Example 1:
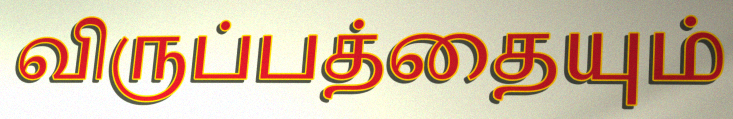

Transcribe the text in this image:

விருப்பத்தையும்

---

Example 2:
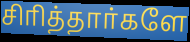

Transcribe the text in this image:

சிரித்தார்களே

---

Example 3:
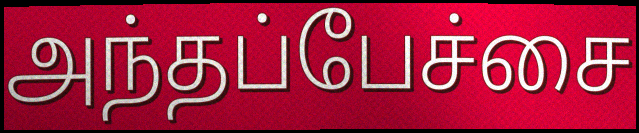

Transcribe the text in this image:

அந்தப்பேச்சை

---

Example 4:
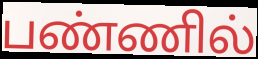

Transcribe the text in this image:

பண்ணில்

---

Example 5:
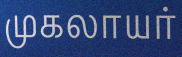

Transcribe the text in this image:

முகலாயர்